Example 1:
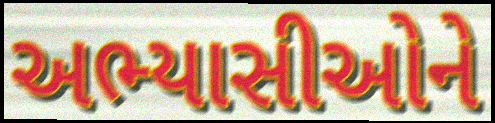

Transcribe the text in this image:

અભ્યાસીઓને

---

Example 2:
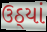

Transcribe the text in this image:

ઉઠ્યાં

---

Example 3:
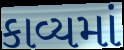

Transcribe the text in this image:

કાવ્યમાં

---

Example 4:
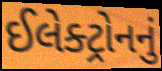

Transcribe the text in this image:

ઈલેક્ટ્રોનનું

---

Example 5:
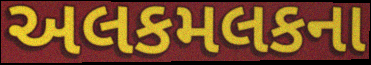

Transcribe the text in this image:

અલકમલકના